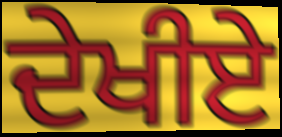
ਦੇਖੀਏ